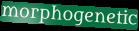
morphogenetic